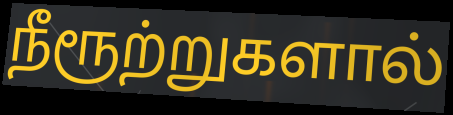
நீரூற்றுகளால்